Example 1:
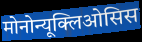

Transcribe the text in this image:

मोनोन्यूक्लिओसिस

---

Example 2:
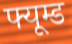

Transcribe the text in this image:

फ्यूम्ड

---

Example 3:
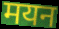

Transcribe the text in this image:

मयन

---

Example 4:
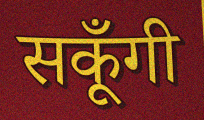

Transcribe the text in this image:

सकूँगी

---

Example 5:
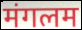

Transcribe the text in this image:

मंगलम